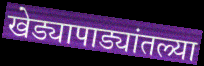
खेड्यापाड्यांतल्या